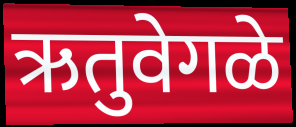
ऋतुवेगळे